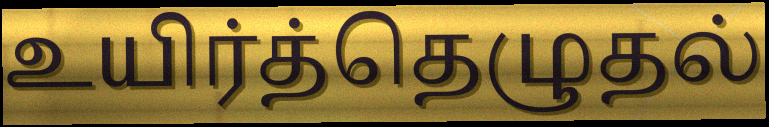
உயிர்த்தெழுதல்